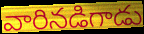
వారినడిగాడు